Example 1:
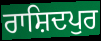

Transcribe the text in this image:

ਰਾਸ਼ਿਦਪੁਰ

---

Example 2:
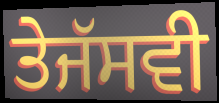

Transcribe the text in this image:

ਤੇਜੱਸਵੀ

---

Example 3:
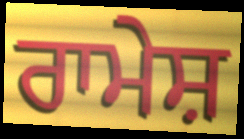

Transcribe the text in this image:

ਰਾਮੇਸ਼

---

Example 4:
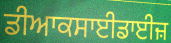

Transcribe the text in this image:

ਡੀਆਕਸਾਈਡਾਈਜ਼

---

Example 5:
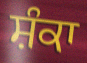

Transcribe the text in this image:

ਸ਼ੰਕਾ